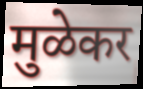
मुळेकर